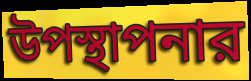
উপস্থাপনার